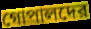
গোপালদের